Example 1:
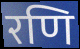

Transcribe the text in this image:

रणि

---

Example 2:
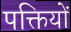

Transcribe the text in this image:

पक्तियों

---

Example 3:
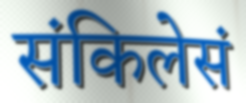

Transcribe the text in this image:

संकिलेसं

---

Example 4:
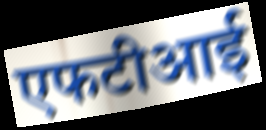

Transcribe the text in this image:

एफटीआई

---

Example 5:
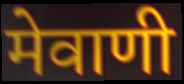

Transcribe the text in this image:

मेवाणी